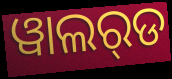
ୱାଲର୍‌ଡ